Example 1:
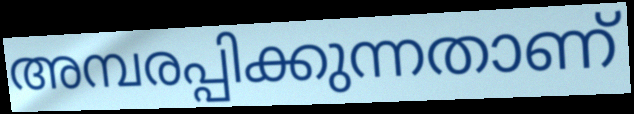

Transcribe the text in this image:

അമ്പരപ്പിക്കുന്നതാണ്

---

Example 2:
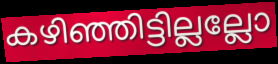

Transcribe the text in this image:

കഴിഞ്ഞിട്ടില്ലല്ലോ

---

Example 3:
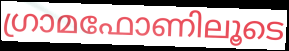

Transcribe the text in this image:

ഗ്രാമഫോണിലൂടെ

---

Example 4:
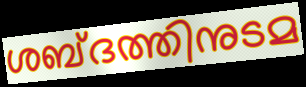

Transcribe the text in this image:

ശബ്ദത്തിനുടമ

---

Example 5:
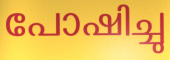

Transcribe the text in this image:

പോഷിച്ചു